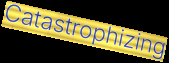
Catastrophizing